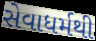
સેવાધર્મથી